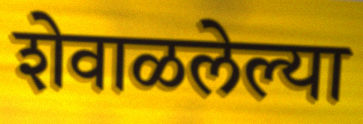
शेवाळलेल्या